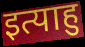
इत्याहु